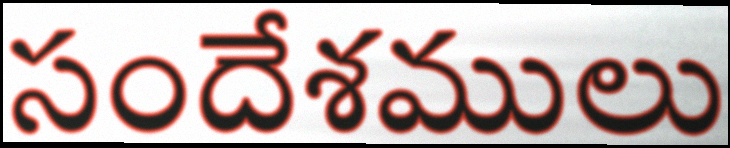
సందేశములు